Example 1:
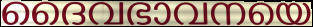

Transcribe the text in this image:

ദൈവഭാവനയെ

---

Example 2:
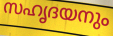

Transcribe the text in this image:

സഹൃദയനും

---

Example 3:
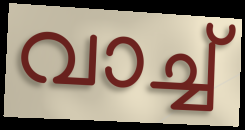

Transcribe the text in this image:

വാച്ച്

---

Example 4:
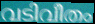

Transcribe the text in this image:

വടിവീതം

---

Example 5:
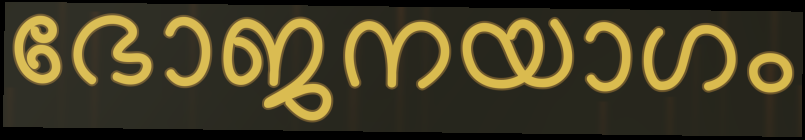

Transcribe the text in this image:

ഭോജനയാഗം